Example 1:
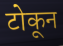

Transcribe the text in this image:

टोकून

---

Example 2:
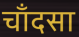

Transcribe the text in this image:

चाँदसा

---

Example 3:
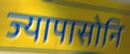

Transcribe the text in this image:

ज्यापासोनि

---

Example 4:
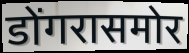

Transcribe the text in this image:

डोंगरासमोर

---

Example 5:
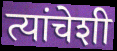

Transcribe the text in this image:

त्यांचेशी